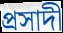
প্রসাদী